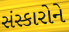
સંસ્કારોને